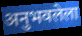
अनुभवलेला